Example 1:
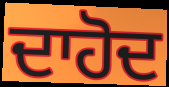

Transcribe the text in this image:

ਦਾਹੋਦ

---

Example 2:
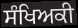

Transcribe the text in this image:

ਸੰਖਿਅਕੀ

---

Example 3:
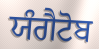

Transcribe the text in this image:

ਯੰਗੈਟੋਬ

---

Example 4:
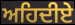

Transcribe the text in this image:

ਅਹਿਦੀਏ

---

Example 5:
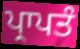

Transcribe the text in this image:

ਪ੍ਰਾਪਤੰ